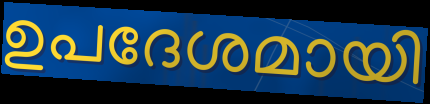
ഉപദേശമായി